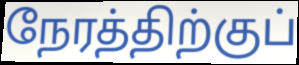
நேரத்திற்குப்